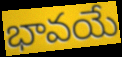
భావయే